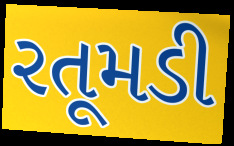
રતૂમડી